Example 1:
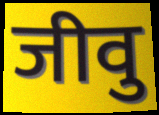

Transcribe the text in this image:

जीवु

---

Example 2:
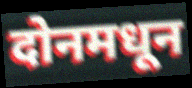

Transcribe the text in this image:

दोनमधून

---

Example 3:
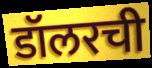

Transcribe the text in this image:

डॉलरची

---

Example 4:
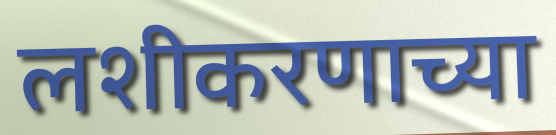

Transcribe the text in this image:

लशीकरणाच्या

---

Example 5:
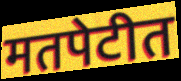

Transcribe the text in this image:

मतपेटीत